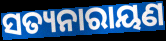
ସତ୍ୟନାରାୟଣ